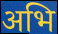
अभि